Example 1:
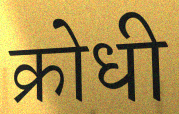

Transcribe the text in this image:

क्रोधी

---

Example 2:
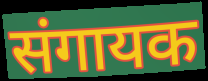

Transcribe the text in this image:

संगायक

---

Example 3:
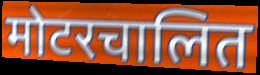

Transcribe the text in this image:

मोटरचालित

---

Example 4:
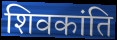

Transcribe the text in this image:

शिवकांति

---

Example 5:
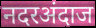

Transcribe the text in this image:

नदरअंदाज